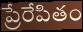
ప్రేరేపితం